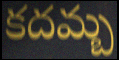
కదమ్బ